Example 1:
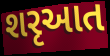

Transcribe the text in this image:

શરૃઆત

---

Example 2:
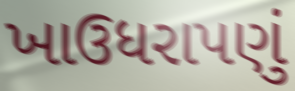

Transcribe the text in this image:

ખાઉધરાપણું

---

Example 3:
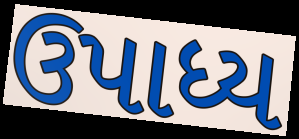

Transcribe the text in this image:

ઉપાધ્ય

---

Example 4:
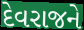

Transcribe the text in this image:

દેવરાજને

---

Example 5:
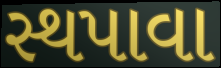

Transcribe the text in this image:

સ્થપાવા